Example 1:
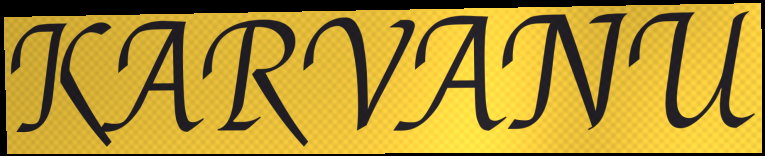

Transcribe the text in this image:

KARVANU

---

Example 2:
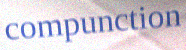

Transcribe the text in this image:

compunction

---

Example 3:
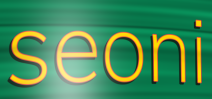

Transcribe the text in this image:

seoni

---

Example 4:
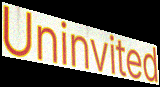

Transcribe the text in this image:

Uninvited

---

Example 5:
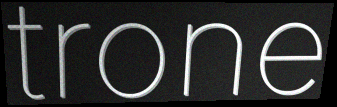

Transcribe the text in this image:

trone